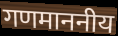
गणमाननीय